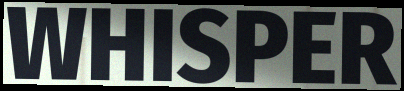
WHISPER